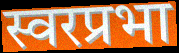
स्वरप्रभा